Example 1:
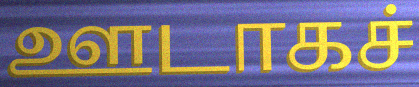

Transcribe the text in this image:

ஊடாகச்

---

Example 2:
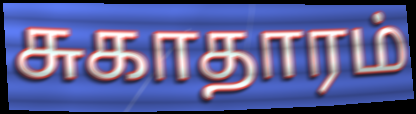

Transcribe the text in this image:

சுகாதாரம்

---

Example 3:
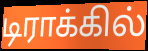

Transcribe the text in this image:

டிராக்கில்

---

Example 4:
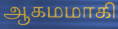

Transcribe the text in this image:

ஆகமமாகி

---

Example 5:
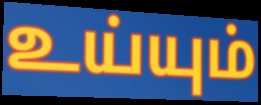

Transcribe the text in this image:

உய்யும்